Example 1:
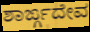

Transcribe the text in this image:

ಶಾರ್ಙ್ಗದೇವ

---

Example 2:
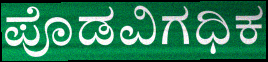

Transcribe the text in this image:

ಪೊಡವಿಗಧಿಕ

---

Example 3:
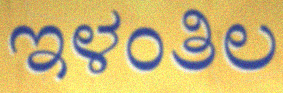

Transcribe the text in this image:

ಇಳಂತಿಲ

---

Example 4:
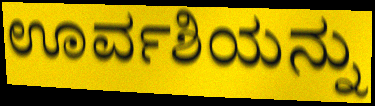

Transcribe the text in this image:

ಊರ್ವಶಿಯನ್ನು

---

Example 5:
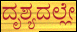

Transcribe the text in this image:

ದೃಶ್ಯದಲ್ಲೇ